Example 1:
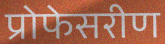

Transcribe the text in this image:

प्रोफेसरीण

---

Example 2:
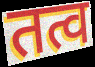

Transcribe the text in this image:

तत्व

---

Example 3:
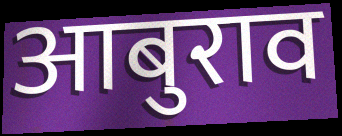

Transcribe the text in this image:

आबुराव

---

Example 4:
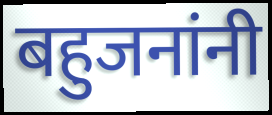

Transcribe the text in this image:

बहुजनांनी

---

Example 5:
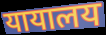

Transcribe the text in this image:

यायालय